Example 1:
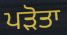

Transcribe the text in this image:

ਪੜੋਤਾ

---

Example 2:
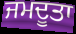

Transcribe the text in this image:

ਜਮਦੂਤਾ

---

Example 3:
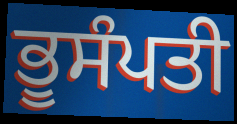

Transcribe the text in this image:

ਭੂਸੰਪਤੀ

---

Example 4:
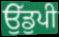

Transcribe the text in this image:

ਉੱਡੁਪੀ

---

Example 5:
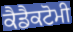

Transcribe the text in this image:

ਕੈਡੈਕਟੋਮੀ